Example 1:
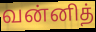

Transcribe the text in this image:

வன்னித்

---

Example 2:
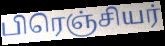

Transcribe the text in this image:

பிரெஞ்சியர்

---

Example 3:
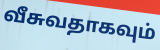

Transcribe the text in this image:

வீசுவதாகவும்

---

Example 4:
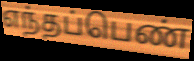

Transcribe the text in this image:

எந்தப்பெண்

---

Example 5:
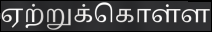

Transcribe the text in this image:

ஏற்றுக்கொள்ள